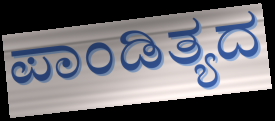
ಪಾಂಡಿತ್ಯದ